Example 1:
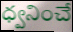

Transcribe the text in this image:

ధ్వనించే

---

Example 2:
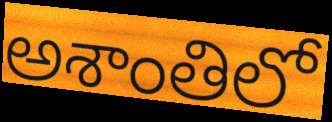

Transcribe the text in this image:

అశాంతిలో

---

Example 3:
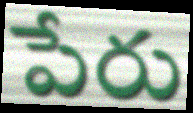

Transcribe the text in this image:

పేరు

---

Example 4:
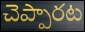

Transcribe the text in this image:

చెప్పారట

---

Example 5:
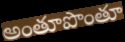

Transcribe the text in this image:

అంతూపొంతూ